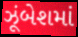
ઝૂંબેશમાં